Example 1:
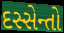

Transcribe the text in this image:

દસ્સેન્તો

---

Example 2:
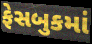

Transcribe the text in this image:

ફેસબુકમાં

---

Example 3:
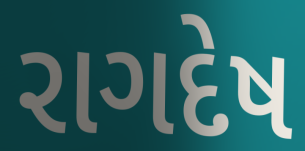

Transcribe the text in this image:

રાગદેષ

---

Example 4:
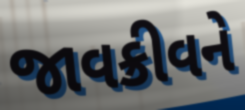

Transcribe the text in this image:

જાવક્રીવને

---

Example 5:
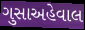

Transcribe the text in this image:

ગુસાઅહેવાલ